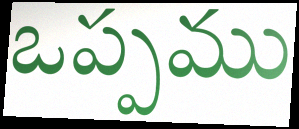
ఒప్పము